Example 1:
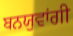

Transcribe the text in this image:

ਬਨਯੁਵਾਂਗੀ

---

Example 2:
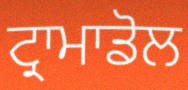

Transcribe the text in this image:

ਟ੍ਰਾਮਾਡੋਲ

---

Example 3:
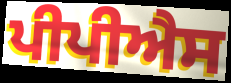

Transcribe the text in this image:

ਪੀਪੀਐਸ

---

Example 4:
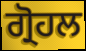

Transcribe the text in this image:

ਗ੍ਰੋਹਲ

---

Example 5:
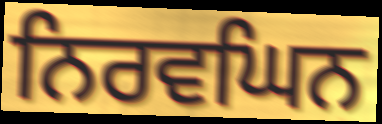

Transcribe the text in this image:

ਨਿਰਵਘਿਨ